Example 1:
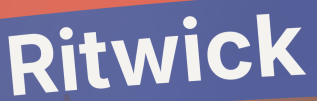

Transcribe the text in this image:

Ritwick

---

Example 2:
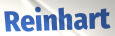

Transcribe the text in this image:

Reinhart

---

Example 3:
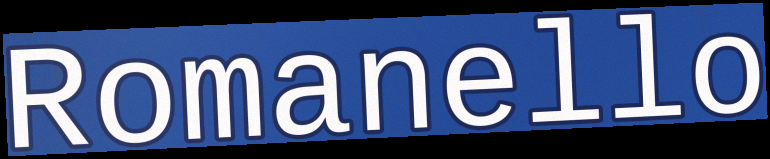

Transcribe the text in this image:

Romanello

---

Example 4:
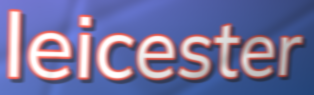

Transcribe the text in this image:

leicester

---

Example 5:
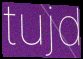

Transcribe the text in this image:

tujd